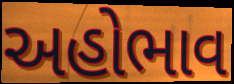
અહોભાવ